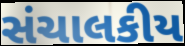
સંચાલકીય